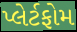
પ્લેર્ટફોમ